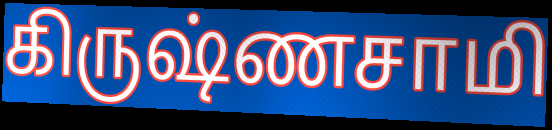
கிருஷ்ணசாமி